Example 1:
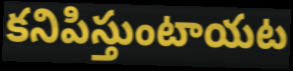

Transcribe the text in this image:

కనిపిస్తుంటాయట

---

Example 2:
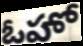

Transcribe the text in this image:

ఓహో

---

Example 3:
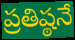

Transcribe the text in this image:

ప్రతిష్ఠనే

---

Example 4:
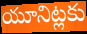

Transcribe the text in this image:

యూనిట్లకు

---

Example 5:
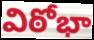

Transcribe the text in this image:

విఠోభా